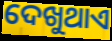
ଦେଖୁଥାଏ